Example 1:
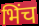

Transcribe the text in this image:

भिंच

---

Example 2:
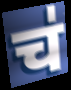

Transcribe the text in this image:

च॑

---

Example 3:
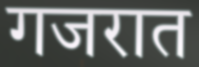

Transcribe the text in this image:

गजरात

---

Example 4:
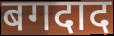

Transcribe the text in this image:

बगदाद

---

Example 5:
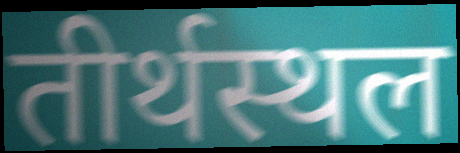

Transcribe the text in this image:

तीर्थस्थल